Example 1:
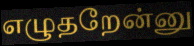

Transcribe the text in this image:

எழுதறேன்னு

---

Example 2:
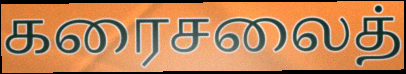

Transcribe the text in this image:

கரைசலைத்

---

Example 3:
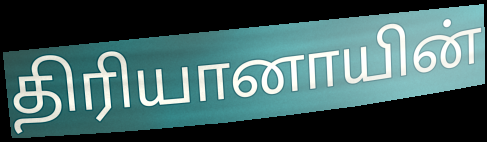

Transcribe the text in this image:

திரியானாயின்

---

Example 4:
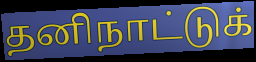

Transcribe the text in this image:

தனிநாட்டுக்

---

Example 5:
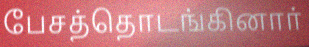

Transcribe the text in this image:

பேசத்தொடங்கினார்